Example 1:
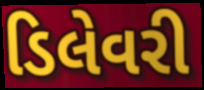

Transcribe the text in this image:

ડિલેવરી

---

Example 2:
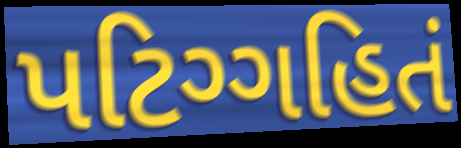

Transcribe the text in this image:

પટિગ્ગહિતં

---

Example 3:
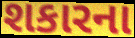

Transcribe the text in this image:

શકારના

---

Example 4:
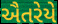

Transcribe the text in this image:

ઐતરેયે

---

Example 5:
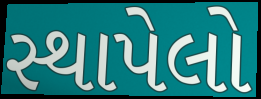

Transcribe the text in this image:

સ્થાપેલો